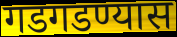
गडगडण्यास